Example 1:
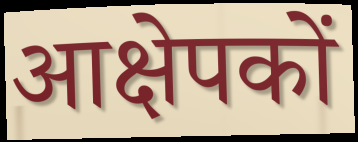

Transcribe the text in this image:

आक्षेपकों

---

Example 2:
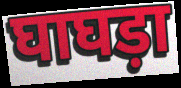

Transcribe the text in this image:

घाघड़ा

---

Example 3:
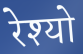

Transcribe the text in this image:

रेश्यो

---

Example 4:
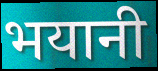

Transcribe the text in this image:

भयानी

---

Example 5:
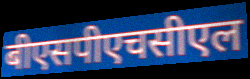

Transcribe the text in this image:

बीएसपीएचसीएल